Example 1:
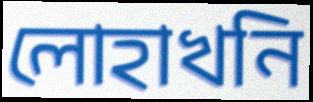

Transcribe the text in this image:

লোহাখনি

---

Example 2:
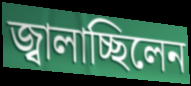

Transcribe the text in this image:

জ্বালাচ্ছিলেন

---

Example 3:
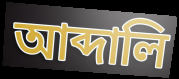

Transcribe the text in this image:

আব্দালি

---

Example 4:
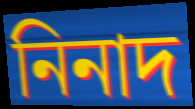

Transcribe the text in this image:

নিনাদ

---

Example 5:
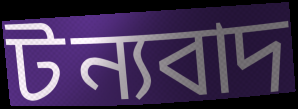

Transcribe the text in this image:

টন্যবাদ